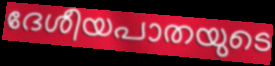
ദേശീയപാതയുടെ